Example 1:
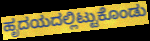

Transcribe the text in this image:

ಹೃದಯದಲ್ಲಿಟ್ಟುಕೊಂಡು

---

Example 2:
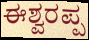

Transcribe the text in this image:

ಈಶ್ವರಪ್ಪ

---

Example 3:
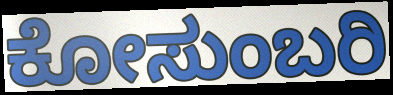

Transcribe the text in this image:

ಕೋಸುಂಬರಿ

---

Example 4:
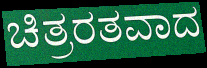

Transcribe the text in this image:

ಚಿತ್ರರತವಾದ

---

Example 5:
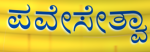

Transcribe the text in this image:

ಪವೇಸೇತ್ವಾ